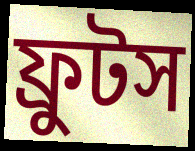
ফ্রুটস